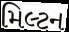
મિલ્ટન